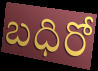
బధిరో